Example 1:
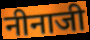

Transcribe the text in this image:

नीनाजी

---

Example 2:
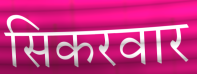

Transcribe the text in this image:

सिकरवार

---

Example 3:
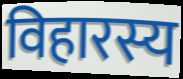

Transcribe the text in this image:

विहारस्य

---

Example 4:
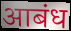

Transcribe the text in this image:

आबंध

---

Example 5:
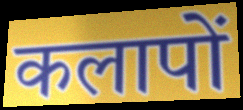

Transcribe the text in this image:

कलापों